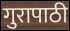
गुरापाठी